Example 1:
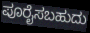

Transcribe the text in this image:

ಪೂರೈಸಬಹುದು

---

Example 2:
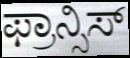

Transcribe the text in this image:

ಫ್ರಾನ್ಸಿಸ್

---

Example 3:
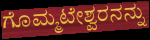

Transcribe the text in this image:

ಗೊಮ್ಮಟೇಶ್ವರನನ್ನು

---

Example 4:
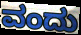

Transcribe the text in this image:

ವಂದು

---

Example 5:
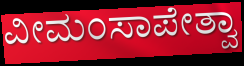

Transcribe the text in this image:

ವೀಮಂಸಾಪೇತ್ವಾ